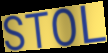
STOL